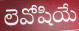
లెవోషియే